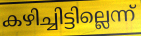
കഴിച്ചിട്ടില്ലെന്ന്